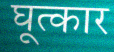
घूत्कार